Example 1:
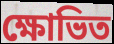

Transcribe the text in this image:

ক্ষোভিত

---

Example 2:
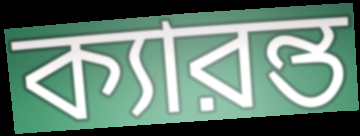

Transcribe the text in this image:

ক্যারন্ত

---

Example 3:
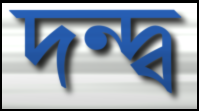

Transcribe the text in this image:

দন্দ্ব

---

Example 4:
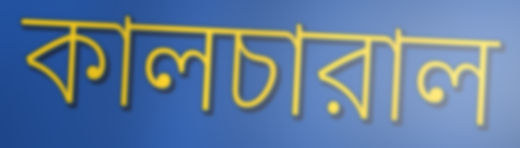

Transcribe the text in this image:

কালচারাল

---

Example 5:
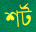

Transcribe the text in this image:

শর্ট